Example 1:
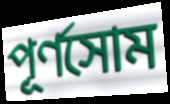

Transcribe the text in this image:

পূর্ণসোম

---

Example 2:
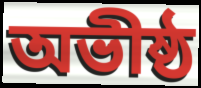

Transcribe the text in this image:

অভীষ্ঠ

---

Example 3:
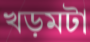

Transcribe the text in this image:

খড়মটা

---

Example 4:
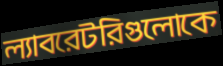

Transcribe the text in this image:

ল্যাবরেটরিগুলোকে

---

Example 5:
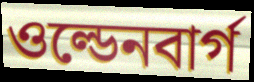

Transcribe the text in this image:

ওল্ডেনবার্গ